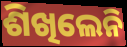
ଶିଖିଲେନି